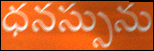
ధనస్సును